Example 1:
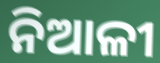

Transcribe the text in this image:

ନିଆଳୀ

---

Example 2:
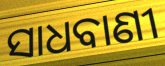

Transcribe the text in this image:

ସାଧବାଣୀ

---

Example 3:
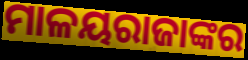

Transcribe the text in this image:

ମାଳୟରାଜାଙ୍କର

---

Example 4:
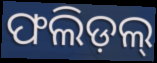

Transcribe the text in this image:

ଫଲିଡ଼ଲ୍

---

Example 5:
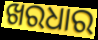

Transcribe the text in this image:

ଖରଧାର